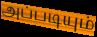
அப்படியும்